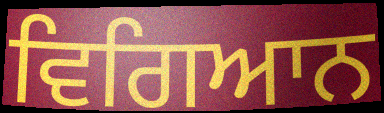
ਵਿਗਿਆਨ